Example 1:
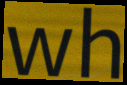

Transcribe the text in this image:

wh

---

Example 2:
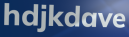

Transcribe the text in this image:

hdjkdave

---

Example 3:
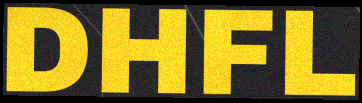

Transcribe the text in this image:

DHFL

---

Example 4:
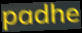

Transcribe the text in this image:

padhe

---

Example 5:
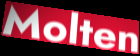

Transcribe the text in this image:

Molten